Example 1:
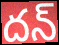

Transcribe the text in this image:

దన్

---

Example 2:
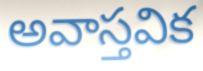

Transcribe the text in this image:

అవాస్తవిక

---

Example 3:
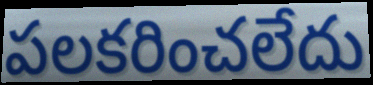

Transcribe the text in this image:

పలకరించలేదు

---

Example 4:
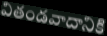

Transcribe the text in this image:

వితండవాదానికి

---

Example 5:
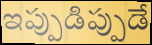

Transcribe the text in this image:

ఇప్పుడిప్పుడే